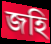
জহি